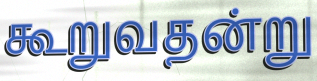
கூறுவதன்று